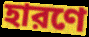
হারণে